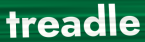
treadle